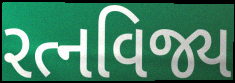
રત્નવિજ્ય